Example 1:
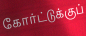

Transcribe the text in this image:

கோர்ட்டுக்குப்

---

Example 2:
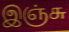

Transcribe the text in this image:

இஞ்சு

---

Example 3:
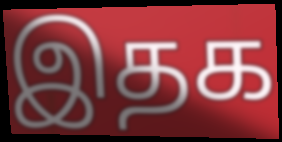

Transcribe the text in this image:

இதக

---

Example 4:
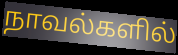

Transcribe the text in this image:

நாவல்களில்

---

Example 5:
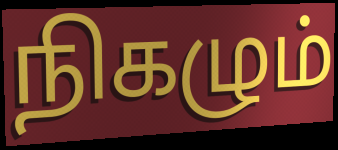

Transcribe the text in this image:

நிகழும்